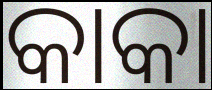
କାକା